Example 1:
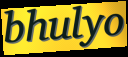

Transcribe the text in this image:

bhulyo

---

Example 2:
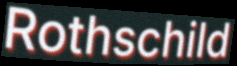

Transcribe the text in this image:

Rothschild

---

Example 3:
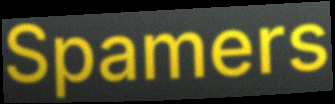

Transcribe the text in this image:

Spamers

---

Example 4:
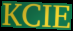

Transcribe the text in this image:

KCIE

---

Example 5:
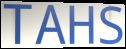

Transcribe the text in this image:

TAHS